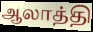
ஆலாத்தி